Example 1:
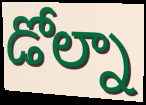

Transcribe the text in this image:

డోల్నా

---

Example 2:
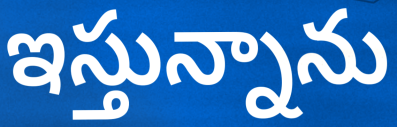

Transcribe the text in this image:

ఇస్తున్నాను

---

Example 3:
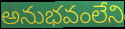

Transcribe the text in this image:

అనుభవంలేని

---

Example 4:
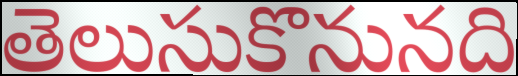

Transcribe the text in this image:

తెలుసుకొనునది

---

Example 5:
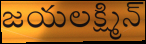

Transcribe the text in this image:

జయలక్ష్మిన్